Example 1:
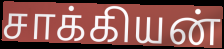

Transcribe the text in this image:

சாக்கியன்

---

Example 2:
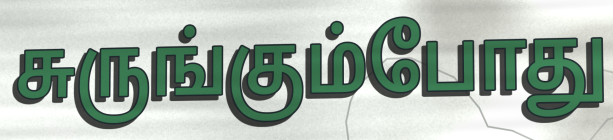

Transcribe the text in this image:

சுருங்கும்போது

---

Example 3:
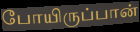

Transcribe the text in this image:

போயிருப்பான்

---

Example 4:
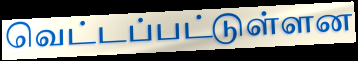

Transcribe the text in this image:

வெட்டப்பட்டுள்ளன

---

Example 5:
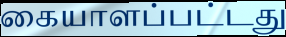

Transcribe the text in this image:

கையாளப்பட்டது